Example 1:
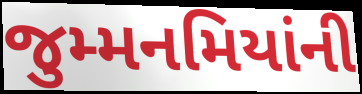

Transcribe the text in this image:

જુમ્મનમિયાંની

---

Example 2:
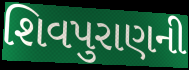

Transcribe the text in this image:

શિવપુરાણની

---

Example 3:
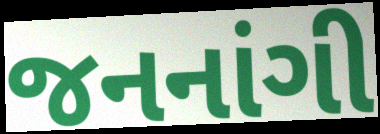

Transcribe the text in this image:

જનનાંગી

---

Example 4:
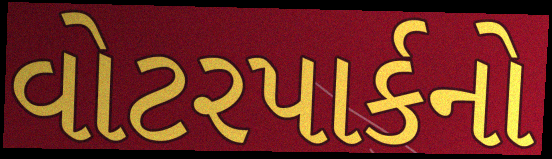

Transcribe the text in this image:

વોટરપાર્કનો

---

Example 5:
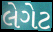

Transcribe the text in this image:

લેગેટ